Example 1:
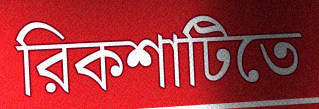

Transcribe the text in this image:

রিকশাটিতে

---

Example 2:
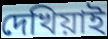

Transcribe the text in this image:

দেখিয়াই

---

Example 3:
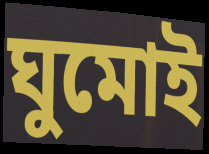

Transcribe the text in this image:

ঘুমোই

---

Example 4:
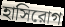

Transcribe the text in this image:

হাসিরোগ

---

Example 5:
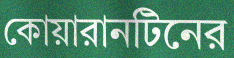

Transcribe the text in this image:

কোয়ারানটিনের